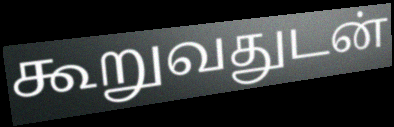
கூறுவதுடன்